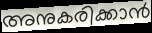
അനുകരിക്കാൻ